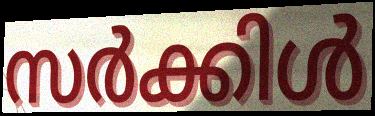
സർക്കിൾ